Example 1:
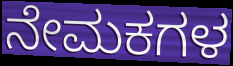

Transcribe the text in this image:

ನೇಮಕಗಳ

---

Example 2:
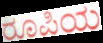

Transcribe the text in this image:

ರೂಪಿಯ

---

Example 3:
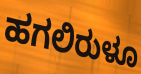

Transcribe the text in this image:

ಹಗಲಿರುಳೂ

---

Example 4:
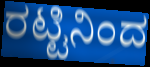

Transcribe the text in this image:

ರಟ್ಟಿನಿಂದ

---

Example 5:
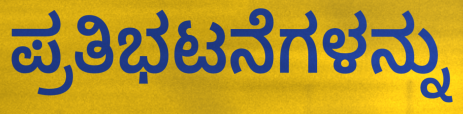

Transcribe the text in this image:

ಪ್ರತಿಭಟನೆಗಳನ್ನು